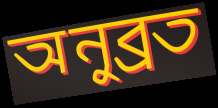
অনুব্রত